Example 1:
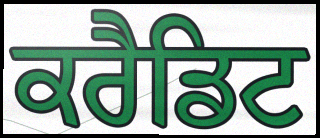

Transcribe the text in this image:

ਕਰੈਡਿਟ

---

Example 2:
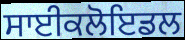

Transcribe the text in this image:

ਸਾਈਕਲੋਇਡਲ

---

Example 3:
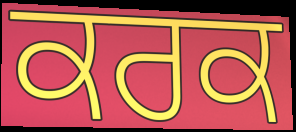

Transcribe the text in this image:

ਕਰਕ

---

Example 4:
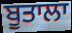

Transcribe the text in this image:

ਬੂਤਾਲਾ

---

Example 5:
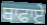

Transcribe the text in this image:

ਬਾਫਾਏ